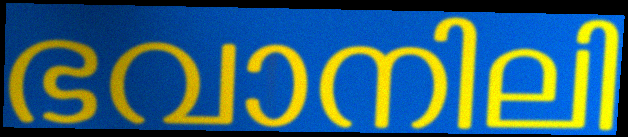
ഭവാനിലി